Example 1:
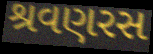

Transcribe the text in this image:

શ્રવણરસ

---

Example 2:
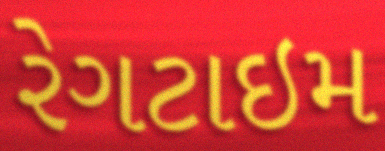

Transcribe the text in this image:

રેગટાઇમ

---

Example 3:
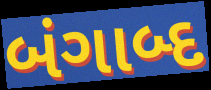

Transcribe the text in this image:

બંગાબ્દ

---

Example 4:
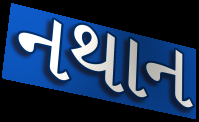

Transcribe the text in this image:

નથાન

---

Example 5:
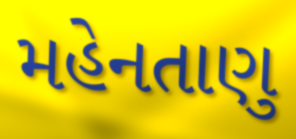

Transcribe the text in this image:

મહેનતાણુ